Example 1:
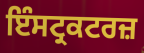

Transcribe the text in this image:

ਇੰਸਟ੍ਰਕਟਰਜ਼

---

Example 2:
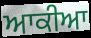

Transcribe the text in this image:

ਆਕੀਆ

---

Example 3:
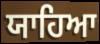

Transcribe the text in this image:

ਯਾਹਿਆ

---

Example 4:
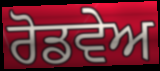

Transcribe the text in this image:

ਰੋਡਵੇਅ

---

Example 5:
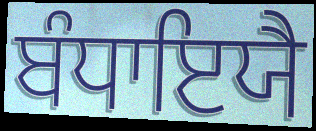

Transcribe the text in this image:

ਬੰਧਾਇਯੈ